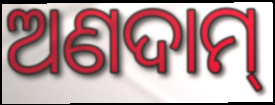
ଅଣଦାମ୍